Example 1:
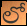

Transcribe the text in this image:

లో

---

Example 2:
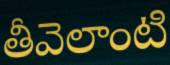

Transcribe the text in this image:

తీవెలాంటి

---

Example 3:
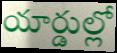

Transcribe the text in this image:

యార్డుల్లో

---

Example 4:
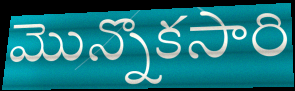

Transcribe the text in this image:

మొన్నొకసారి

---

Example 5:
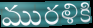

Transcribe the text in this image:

మురళికి